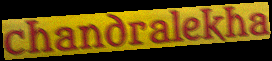
chandralekha